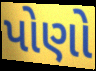
પોણો